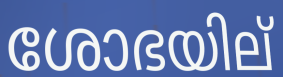
ശോഭയില്